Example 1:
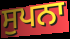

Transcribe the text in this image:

ਸੁਪਨਾ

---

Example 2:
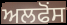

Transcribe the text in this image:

ਅਲਫੋਂਸ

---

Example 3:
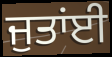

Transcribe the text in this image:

ਜੁਤਾਂਈ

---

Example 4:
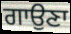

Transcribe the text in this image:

ਗਾਉਣਾ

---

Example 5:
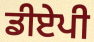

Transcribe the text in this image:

ਡੀਏਪੀ